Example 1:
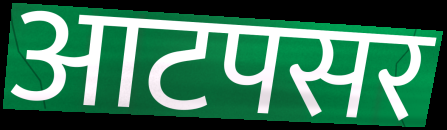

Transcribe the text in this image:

आटपसर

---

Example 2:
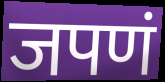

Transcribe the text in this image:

जपणं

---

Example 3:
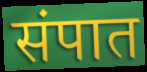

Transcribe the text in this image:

संपात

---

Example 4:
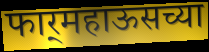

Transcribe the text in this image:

फार्महाऊसच्या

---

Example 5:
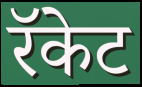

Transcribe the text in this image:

रॅकेट